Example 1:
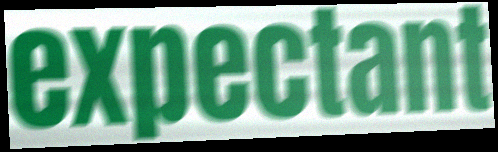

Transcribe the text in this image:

expectant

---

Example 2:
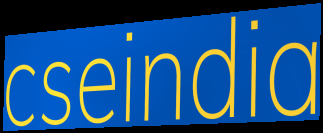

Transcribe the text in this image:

cseindia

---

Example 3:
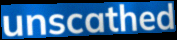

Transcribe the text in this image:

unscathed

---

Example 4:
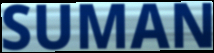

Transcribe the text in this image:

SUMAN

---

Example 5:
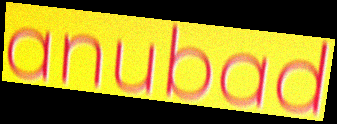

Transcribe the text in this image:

anubad